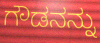
ಗೌಡನನ್ನು